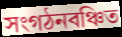
সংগঠনবঞ্চিত